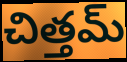
చిత్తమ్